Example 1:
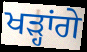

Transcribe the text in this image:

ਖੜ੍ਹਾਂਗੇ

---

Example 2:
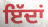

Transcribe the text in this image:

ਇੱਦਾਂ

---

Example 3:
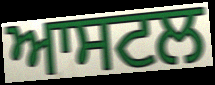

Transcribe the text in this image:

ਆਸਟਲ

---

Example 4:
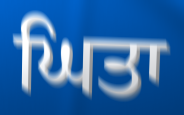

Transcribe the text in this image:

ਘਿਤਾ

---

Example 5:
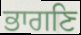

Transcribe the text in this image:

ਭਾਗਣਿ